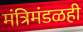
मंत्रिमंडळही